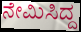
ನೇಮಿಸಿದ್ದ